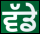
ਵੱਡੇ